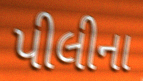
પીલીના